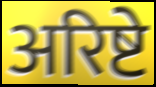
अरिष्टे